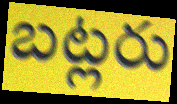
బట్లరు